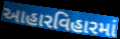
આહારવિહારમાં